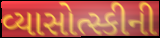
વ્યાસોત્સ્કીની